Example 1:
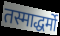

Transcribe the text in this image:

तस्माद्धर्मो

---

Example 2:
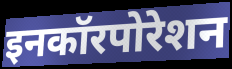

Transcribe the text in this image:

इनकॉरपोरेशन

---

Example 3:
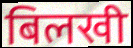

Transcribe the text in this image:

बिलखी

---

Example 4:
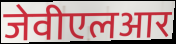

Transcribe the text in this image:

जेवीएलआर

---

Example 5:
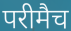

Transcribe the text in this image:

परीमैच